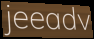
jeeadv